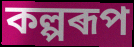
কল্পৰূপ